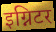
इग्निटर